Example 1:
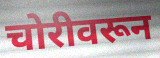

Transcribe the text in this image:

चोरीवरून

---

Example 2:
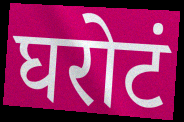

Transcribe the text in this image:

घरोटं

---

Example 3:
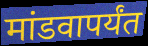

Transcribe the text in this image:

मांडवापर्यंत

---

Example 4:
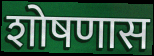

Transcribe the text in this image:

शोषणास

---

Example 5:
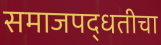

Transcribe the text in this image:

समाजपद्धतीचा